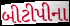
બીટીપીના